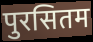
पुरसितम